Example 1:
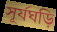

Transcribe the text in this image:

সূর্যঘড়ি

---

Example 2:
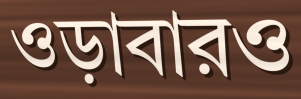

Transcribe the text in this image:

ওড়াবারও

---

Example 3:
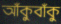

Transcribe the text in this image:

আঁকুবাঁকু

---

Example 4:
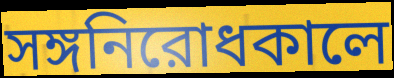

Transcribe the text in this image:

সঙ্গনিরোধকালে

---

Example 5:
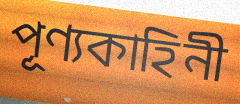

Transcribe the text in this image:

পূণ্যকাহিনী